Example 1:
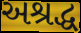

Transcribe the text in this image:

અશ્રદ્ધ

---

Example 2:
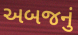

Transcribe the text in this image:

અબજનું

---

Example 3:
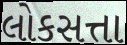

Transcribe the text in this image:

લોકસત્તા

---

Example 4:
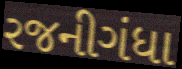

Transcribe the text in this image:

રજનીગંધા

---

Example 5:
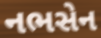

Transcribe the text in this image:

નભસેન